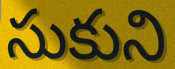
సుకుని